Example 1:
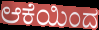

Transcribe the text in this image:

ಆಕೆಯಿಂದ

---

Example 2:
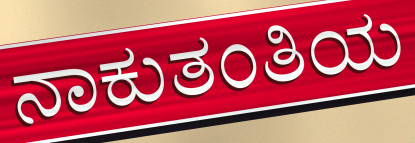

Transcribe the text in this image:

ನಾಕುತಂತಿಯ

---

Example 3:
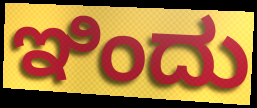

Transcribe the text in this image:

ಇಿಂದು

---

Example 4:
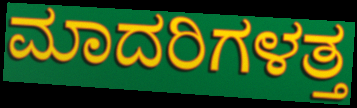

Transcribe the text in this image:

ಮಾದರಿಗಳತ್ತ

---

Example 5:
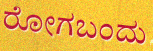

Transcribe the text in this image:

ರೋಗಬಂದು